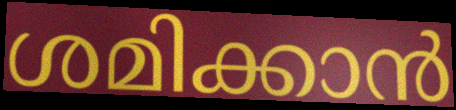
ശമിക്കാൻ